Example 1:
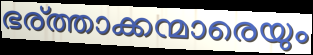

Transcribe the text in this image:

ഭര്ത്താക്കന്മാരെയും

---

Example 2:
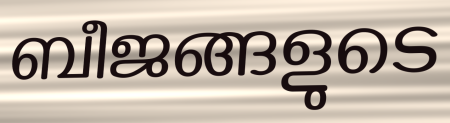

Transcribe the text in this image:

ബീജങ്ങളുടെ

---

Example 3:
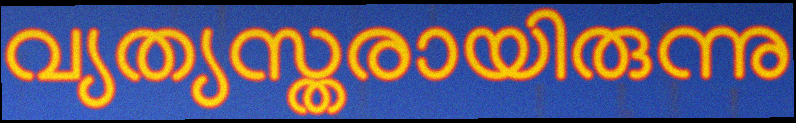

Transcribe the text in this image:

വ്യത്യസ്തരായിരുന്നു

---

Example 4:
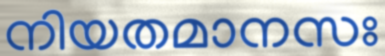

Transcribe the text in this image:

നിയതമാനസഃ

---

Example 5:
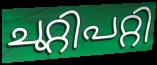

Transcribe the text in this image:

ചുറ്റിപറ്റി